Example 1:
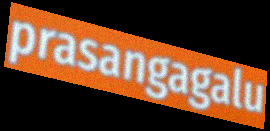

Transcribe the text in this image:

prasangagalu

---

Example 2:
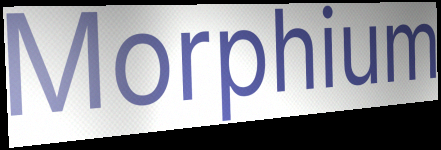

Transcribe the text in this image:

Morphium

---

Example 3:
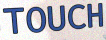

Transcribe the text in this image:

TOUCH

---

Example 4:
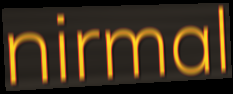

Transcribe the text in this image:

nirmal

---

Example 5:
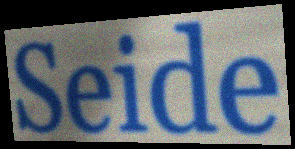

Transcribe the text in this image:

Seide